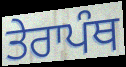
ਤੇਰਾਪੰਥ